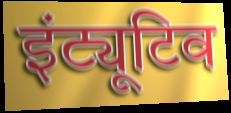
इंट्यूटिव